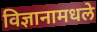
विज्ञानामधले